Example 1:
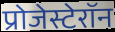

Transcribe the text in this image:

प्रोजेस्टेरॉन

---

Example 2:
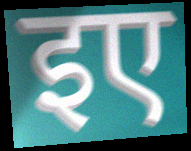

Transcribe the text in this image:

इए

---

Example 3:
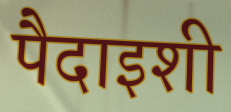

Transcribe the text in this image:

पैदाइशी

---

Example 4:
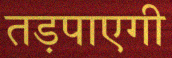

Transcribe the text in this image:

तड़पाएगी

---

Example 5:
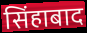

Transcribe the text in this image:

सिंहाबाद